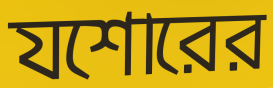
যশোরের